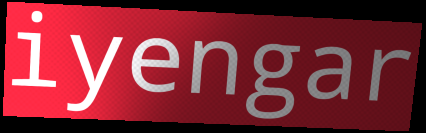
iyengar